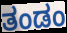
ತಂಡಂ